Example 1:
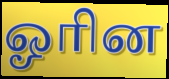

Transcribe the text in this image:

ஓரின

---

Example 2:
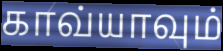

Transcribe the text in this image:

காவ்யாவும்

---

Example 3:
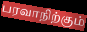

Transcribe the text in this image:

பரவாநிற்கும்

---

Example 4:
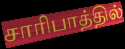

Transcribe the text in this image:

சாரிபாத்தில்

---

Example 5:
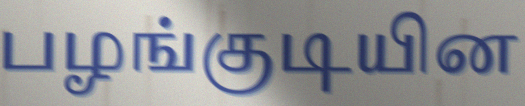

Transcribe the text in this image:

பழங்குடியின